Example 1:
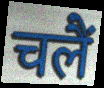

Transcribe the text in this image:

चलैं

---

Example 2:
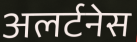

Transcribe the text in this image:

अलर्टनेस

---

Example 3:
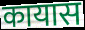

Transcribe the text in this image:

कायास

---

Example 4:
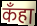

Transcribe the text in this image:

कँहा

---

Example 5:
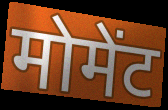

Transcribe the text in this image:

मोमेंट